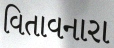
વિતાવનારા